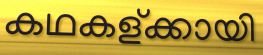
കഥകള്ക്കായി